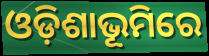
ଓଡ଼ିଶାଭୂମିରେ